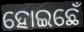
ହୋଇଛେଁ